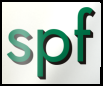
spf